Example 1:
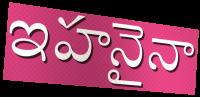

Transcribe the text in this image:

ఇహనైనా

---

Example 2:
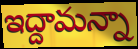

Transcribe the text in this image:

ఇద్దామన్నా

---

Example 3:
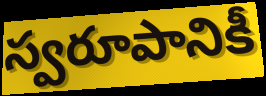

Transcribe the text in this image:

స్వరూపానికీ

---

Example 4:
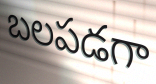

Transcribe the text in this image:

బలపడగా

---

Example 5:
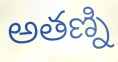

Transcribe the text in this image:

అతణ్ని